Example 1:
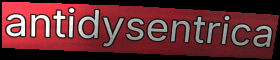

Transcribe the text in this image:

antidysentrica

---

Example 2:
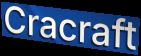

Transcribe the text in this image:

Cracraft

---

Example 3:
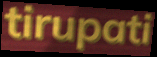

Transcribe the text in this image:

tirupati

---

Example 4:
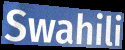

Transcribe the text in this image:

Swahili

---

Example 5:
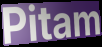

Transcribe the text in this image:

Pitam